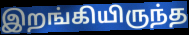
இறங்கியிருந்த